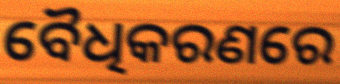
ବୈଧିକରଣରେ